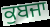
ਕੁਬਜਾ